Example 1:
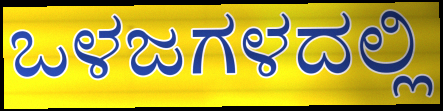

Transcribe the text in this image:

ಒಳಜಗಳದಲ್ಲಿ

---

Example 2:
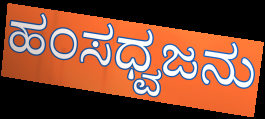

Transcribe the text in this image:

ಹಂಸಧ್ವಜನು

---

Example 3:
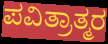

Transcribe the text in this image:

ಪವಿತ್ರಾತ್ಮರ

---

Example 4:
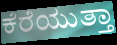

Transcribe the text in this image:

ಕೆರೆಯುತ್ತಾ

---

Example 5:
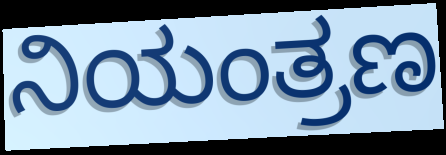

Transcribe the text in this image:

ನಿಯಂತ್ರಣ